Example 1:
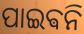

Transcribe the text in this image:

ପାଇଵନି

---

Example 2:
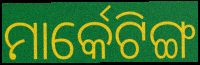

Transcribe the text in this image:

ମାର୍କେଟିଙ୍ଗ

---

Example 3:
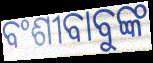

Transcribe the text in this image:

ବଂଶୀବାବୁଙ୍କ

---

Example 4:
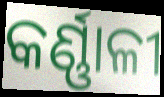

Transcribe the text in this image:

କର୍ଣ୍ଣାଳୀ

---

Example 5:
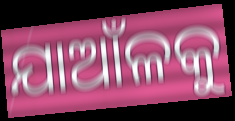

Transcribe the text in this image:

ଯାଆଁଳକୁ